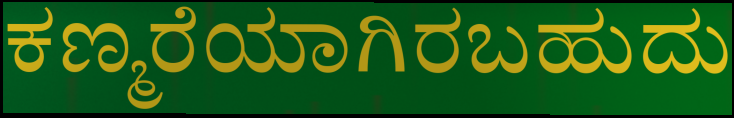
ಕಣ್ಮರೆಯಾಗಿರಬಹುದು